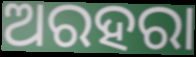
ଅରହରା